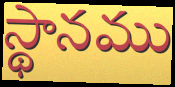
స్థానము